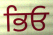
ਭਿਓ